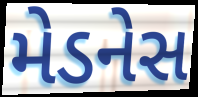
મેડનેસ